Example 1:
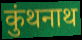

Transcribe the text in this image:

कुंथनाथ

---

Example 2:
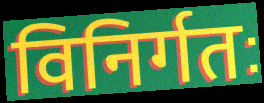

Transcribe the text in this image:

विनिर्गतः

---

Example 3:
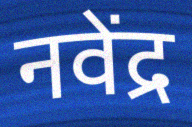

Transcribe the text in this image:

नवेंद्र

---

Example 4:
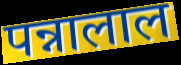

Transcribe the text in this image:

पन्नालाल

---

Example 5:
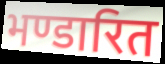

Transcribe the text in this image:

भण्डारित